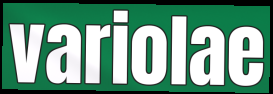
variolae